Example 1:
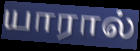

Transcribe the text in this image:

யாரால்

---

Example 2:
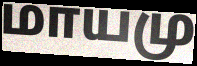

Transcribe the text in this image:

மாயமு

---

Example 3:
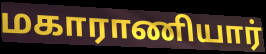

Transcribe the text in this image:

மகாராணியார்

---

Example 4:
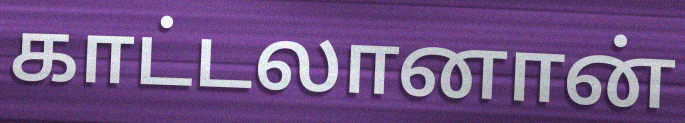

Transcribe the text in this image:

காட்டலானான்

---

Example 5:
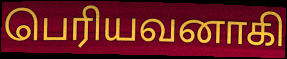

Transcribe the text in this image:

பெரியவனாகி